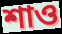
শাও